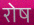
रोष